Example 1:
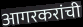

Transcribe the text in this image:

आगरकरांची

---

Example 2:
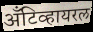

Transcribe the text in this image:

अँटिव्हायरल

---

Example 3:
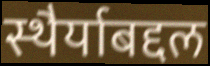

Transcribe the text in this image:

स्थैर्याबद्दल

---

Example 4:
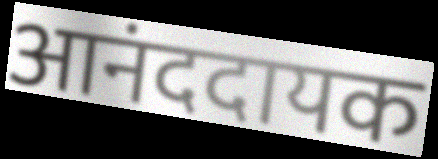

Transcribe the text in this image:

आनंददायक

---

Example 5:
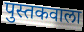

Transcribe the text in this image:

पुस्तकवाला